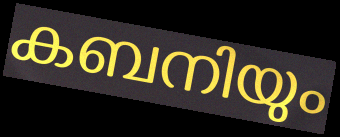
കബനിയും